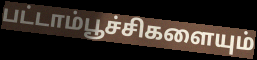
பட்டாம்பூச்சிகளையும்